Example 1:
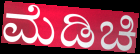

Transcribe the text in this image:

ಮೆಡಿಚಿ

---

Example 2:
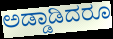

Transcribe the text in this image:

ಅಡ್ಡಾಡಿದರೂ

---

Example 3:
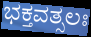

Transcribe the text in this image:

ಭಕ್ತವತ್ಸಲಃ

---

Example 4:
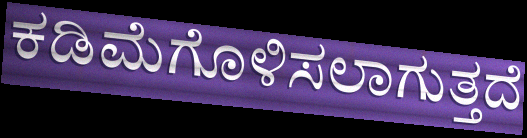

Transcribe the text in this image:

ಕಡಿಮೆಗೊಳಿಸಲಾಗುತ್ತದೆ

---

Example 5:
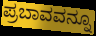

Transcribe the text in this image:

ಪ್ರಬಾವವನ್ನೂ